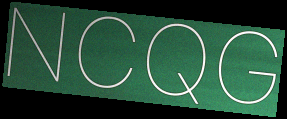
NCQG